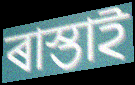
ৰাস্তাই